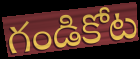
గండికోట